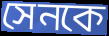
সেনকে